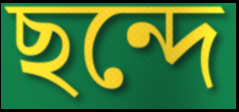
ছন্দে